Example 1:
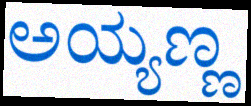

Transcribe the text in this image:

ಅಯ್ಯಣ್ಣ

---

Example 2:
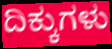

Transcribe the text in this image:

ದಿಕ್ಕುಗಳು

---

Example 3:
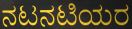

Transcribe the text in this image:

ನಟನಟಿಯರ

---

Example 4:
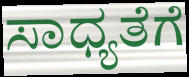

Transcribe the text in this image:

ಸಾಧ್ಯತೆಗೆ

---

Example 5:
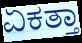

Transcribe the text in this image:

ಏಕತ್ತಾ